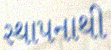
સ્થાપનાથી